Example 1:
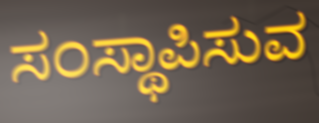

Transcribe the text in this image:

ಸಂಸ್ಥಾಪಿಸುವ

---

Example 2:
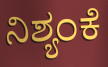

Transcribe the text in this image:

ನಿಶ್ಯಂಕೆ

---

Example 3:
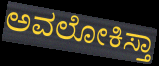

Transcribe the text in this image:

ಅವಲೋಕಿಸ್ತಾ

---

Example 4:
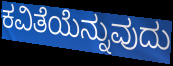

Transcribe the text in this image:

ಕವಿತೆಯೆನ್ನುವುದು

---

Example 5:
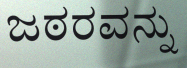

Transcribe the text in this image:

ಜಠರವನ್ನು